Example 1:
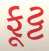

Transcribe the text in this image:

ફૂટ્ટ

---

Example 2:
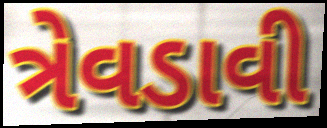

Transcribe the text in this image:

ત્રેવડાવી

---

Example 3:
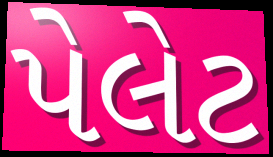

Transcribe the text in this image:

પેલેટ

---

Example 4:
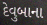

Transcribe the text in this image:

દેવુબાના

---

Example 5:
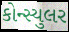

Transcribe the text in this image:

કોન્સ્યુલર